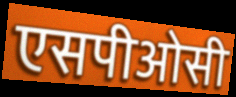
एसपीओसी